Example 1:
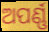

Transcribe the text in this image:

ଅପର୍ଣ୍ଣ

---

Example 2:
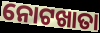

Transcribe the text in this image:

ନୋଟଖାତା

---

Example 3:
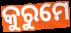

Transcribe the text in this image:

କୁରୁମେ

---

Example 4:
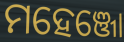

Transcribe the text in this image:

ମହେଞ୍ଜୋ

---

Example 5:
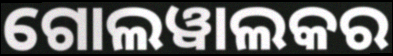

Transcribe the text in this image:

ଗୋଲୱାଲକର